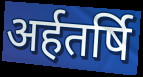
अर्हतर्षि